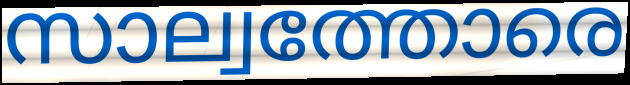
സാല്വത്തോരെ